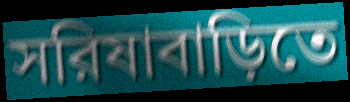
সরিষাবাড়িতে